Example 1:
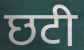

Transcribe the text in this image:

छटी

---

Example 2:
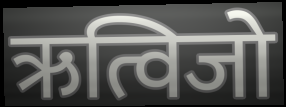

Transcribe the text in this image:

ऋत्विजो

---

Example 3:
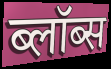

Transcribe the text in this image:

ब्लॉब्स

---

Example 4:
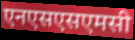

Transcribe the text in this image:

एनएसएसएमसी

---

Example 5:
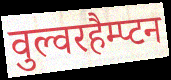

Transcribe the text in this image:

वुल्वरहैम्प्टन